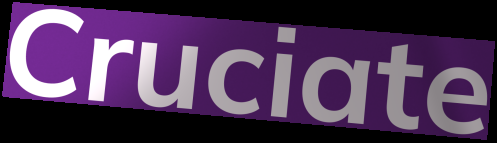
Cruciate